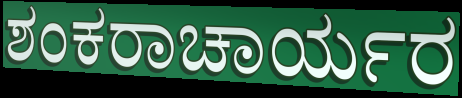
ಶಂಕರಾಚಾರ್ಯರ